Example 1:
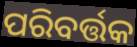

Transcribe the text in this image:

ପରିବର୍ତ୍ତକ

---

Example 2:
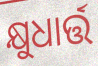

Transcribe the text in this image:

କ୍ଷୁଧାର୍ତ୍ତ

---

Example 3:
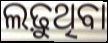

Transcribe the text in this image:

ଲଢ଼ୁଥିବା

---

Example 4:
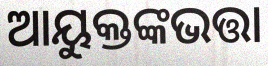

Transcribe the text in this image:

ଆୟୁକ୍ତଙ୍କଭତ୍ତା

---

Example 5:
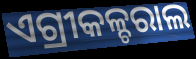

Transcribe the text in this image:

ଏଗ୍ରୀକଳ୍ଚରାଲ